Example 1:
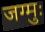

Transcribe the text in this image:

जग्मुः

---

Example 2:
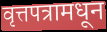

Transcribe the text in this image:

वृत्तपत्रामधून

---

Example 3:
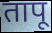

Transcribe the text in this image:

तापू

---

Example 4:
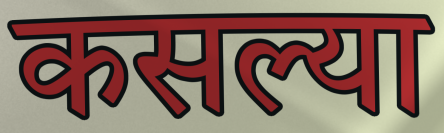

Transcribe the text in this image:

कसल्या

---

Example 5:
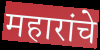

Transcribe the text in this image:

महारांचे